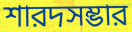
শারদসম্ভার